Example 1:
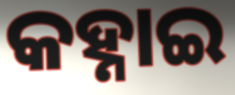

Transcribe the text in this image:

କହ୍ନାଇ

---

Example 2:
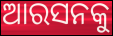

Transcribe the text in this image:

ଆରସନକୁ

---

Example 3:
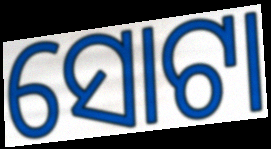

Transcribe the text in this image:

ସୋଟା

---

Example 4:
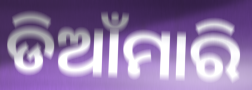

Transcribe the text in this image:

ଡିଆଁମାରି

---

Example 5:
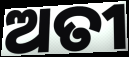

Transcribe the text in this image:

ଅତୀ